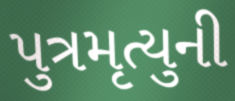
પુત્રમૃત્યુની